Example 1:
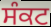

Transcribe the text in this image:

ਸੰਕਟ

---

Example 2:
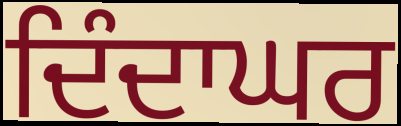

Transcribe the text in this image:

ਦਿੰਦਾਘਰ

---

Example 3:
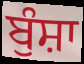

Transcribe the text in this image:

ਬੁੰਸ਼ਾ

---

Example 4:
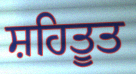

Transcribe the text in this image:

ਸ਼ਹਿਤੂਤ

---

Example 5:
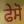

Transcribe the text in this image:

ਫੇਸੋ